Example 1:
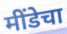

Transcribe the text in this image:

मींडेचा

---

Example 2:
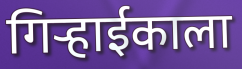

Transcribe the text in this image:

गिर्‍हाईकाला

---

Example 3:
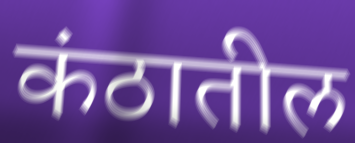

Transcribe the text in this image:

कंठातील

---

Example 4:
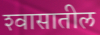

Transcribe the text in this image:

श्वासातील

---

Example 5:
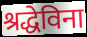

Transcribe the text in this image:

श्रद्धेविना